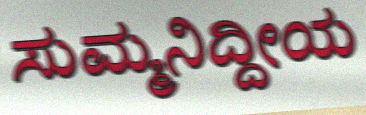
ಸುಮ್ಮನಿದ್ದೀಯ